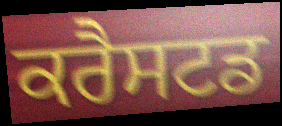
ਕਰੈਸਟਡ